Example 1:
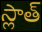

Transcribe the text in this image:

స్లాత్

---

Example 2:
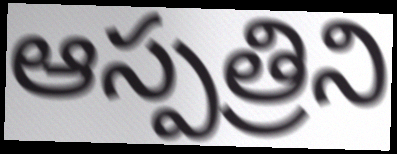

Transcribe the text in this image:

ఆస్పత్రిని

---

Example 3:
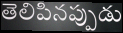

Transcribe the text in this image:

తెలిపినప్పుడు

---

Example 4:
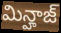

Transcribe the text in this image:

మిన్హాజ్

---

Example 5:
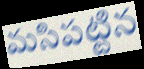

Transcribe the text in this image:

మసిపట్టిన